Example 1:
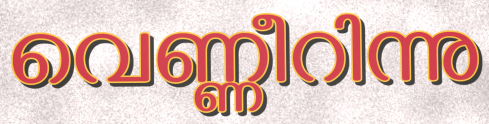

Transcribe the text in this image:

വെണ്ണീറിന്നു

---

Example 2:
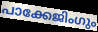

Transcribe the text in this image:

പാക്കേജിംഗും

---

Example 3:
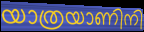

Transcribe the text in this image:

യാത്രയാണിനി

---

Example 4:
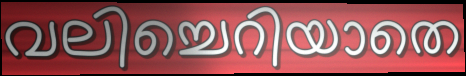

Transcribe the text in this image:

വലിച്ചെറിയാതെ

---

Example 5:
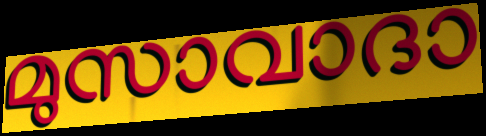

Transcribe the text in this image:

മുസാവാദാ